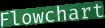
Flowchart